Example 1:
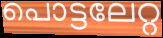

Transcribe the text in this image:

പൊട്ടലേറ്റ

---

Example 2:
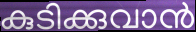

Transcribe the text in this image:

കുടിക്കുവാൻ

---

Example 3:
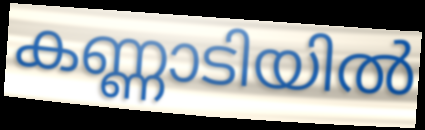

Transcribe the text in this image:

കണ്ണാടിയിൽ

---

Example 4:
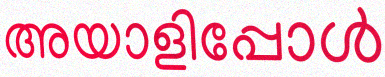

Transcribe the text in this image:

അയാളിപ്പോൾ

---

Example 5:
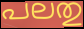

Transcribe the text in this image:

പലതു